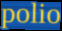
polio